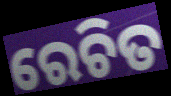
ରେଚିତ